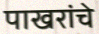
पाखरांचे